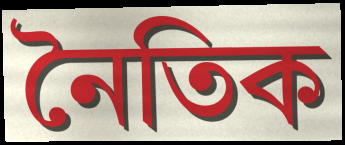
নৈতিক